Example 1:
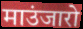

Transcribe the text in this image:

माउंजारो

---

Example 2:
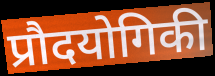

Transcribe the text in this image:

प्रौदयोगिकी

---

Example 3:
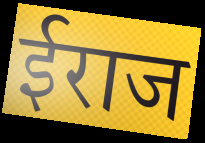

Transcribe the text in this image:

ईराज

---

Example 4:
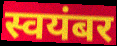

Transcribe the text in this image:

स्वयंबर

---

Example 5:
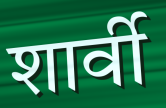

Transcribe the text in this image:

शार्वी